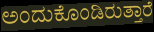
ಅಂದುಕೊಂಡಿರುತ್ತಾರೆ